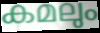
കമലും